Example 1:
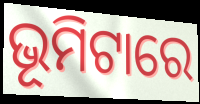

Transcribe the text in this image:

ଭୂମିଟାରେ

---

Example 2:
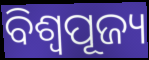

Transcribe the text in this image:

ବିଶ୍ୱପୂଜ୍ୟ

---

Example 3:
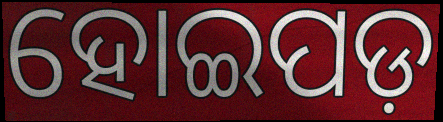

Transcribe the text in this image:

ହୋଇପଡ଼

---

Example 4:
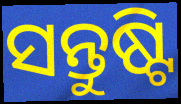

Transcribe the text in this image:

ସନ୍ତୁଷ୍ଟି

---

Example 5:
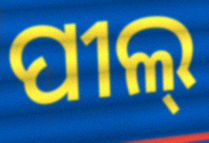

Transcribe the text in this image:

ପୀଲ୍